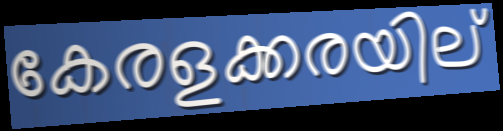
കേരളക്കരയില്